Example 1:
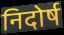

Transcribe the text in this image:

निदोर्ष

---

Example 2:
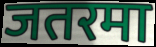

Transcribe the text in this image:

जतरमा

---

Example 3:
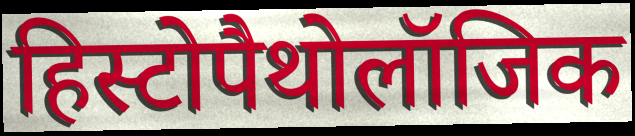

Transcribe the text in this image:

हिस्टोपैथोलॉजिक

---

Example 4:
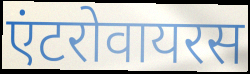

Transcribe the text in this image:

एंटरोवायरस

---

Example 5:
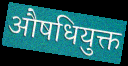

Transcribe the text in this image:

औषधियुक्त